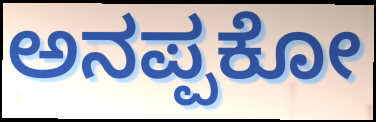
ಅನಪ್ಪಕೋ